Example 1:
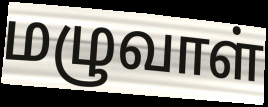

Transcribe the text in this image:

மழுவாள்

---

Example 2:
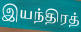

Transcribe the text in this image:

இயந்திரத்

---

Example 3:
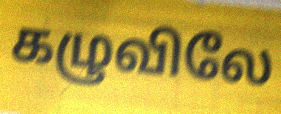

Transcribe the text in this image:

கழுவிலே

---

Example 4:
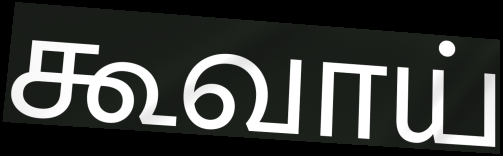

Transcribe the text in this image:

கூவாய்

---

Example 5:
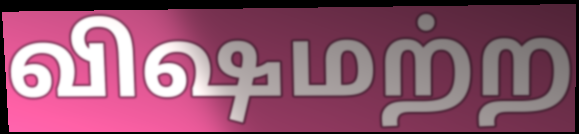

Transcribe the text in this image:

விஷமற்ற